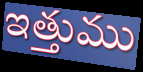
ఇత్తుము